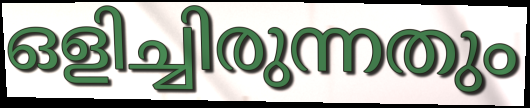
ഒളിച്ചിരുന്നതും